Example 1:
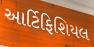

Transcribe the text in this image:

આર્ટિફિશિયલ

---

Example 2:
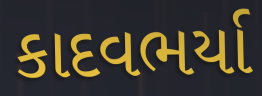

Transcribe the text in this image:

કાદવભર્યા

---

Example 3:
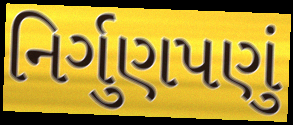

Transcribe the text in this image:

નિર્ગુણપણું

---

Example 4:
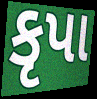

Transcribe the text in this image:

કૃપા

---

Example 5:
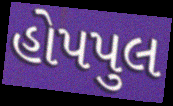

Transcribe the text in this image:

હોપપુલ